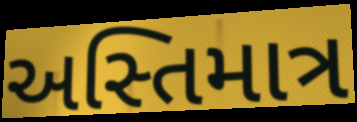
અસ્તિમાત્ર